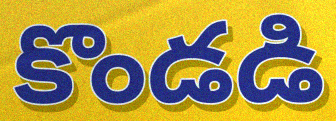
కొండడి